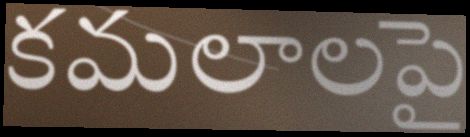
కమలాలపై